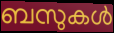
ബസുകൾ